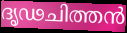
ദൃഢചിത്തൻ